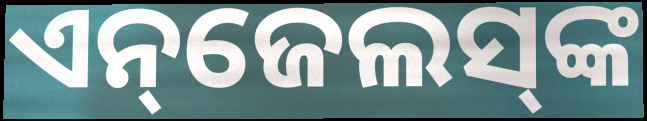
ଏନ୍‌ଜେଲସ୍‌ଙ୍କ